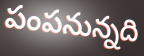
పంపనున్నది